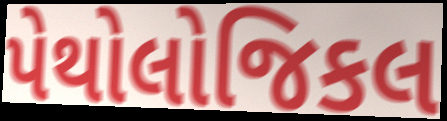
પેથોલોજિકલ